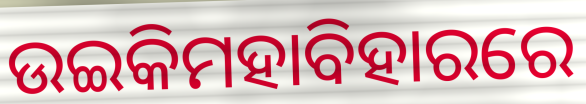
ଉଇକିମହାବିହାରରେ